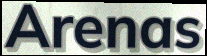
Arenas